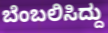
ಬೆಂಬಲಿಸಿದ್ದು